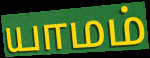
யாமம்